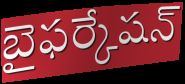
బైఫర్కేషన్